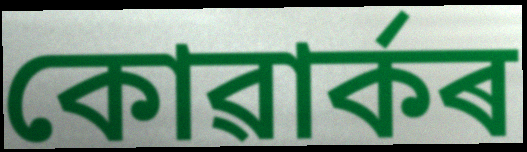
কোৱাৰ্কৰ